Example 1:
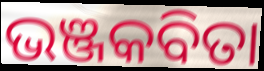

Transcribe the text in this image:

ଭଞ୍ଜକବିତା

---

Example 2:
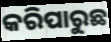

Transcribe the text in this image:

କରିପାରୁଛ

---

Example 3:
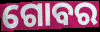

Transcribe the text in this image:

ଗୋବର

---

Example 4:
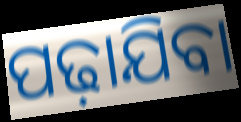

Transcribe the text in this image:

ପଢ଼ାଯିବା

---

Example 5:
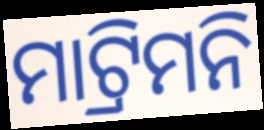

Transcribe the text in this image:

ମାଟ୍ରିମନି